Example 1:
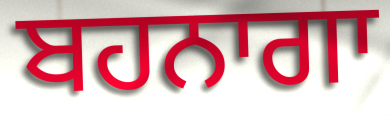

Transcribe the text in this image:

ਬਹਨਾਗਾ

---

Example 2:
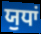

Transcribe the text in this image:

ਯੁਧਾਂ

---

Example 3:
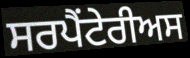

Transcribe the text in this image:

ਸਰਪੈਂਟੇਰੀਅਸ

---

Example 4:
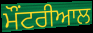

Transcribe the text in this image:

ਮੌਂਟਰੀਆਲ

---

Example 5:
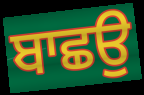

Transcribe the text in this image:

ਬਾਛਉ